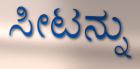
ಸೀಟನ್ನು